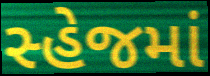
સ્હેજમાં